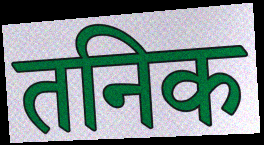
तनिक